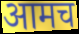
आमच